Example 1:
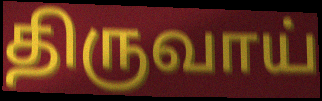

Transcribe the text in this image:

திருவாய்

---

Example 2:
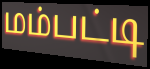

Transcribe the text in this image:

மம்பட்டி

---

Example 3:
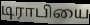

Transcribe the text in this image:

டிராபியை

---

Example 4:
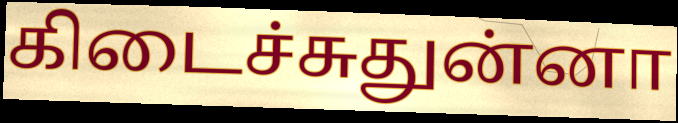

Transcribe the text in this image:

கிடைச்சுதுன்னா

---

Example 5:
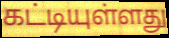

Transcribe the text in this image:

கட்டியுள்ளது